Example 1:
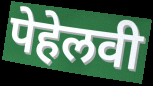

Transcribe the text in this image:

पेहेलवी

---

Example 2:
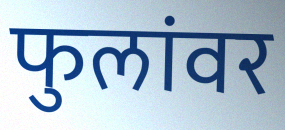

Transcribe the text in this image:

फुलांवर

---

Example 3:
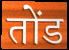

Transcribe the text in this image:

तोंड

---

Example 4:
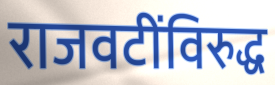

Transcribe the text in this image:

राजवटींविरुद्ध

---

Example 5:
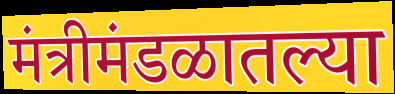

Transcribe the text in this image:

मंत्रीमंडळातल्या